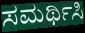
ಸಮರ್ಥಿಸಿ